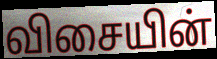
விசையின்